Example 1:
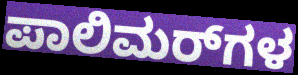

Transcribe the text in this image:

ಪಾಲಿಮರ್‌ಗಳ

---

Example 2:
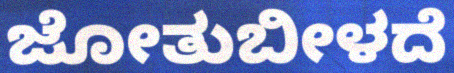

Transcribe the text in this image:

ಜೋತುಬೀಳದೆ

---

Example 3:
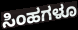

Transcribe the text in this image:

ಸಿಂಹಗಳೂ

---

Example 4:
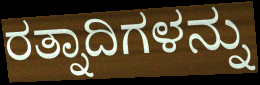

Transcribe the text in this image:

ರತ್ನಾದಿಗಳನ್ನು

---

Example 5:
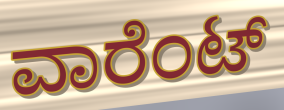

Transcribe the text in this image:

ವಾರೆಂಟ್